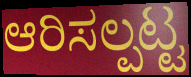
ಆರಿಸಲ್ಪಟ್ಟ